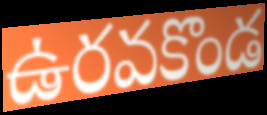
ఉరవకొండ